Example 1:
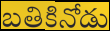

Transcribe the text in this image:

బతికినోడు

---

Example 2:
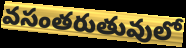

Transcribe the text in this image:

వసంతరుతువులో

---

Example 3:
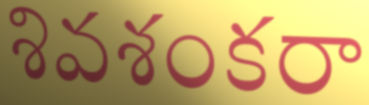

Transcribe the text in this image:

శివశంకరా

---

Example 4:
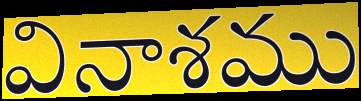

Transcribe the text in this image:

వినాశము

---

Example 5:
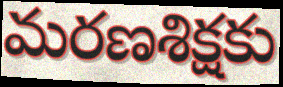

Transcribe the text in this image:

మరణశిక్షకు